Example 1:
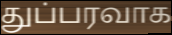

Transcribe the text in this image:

துப்பரவாக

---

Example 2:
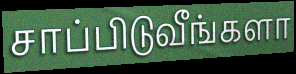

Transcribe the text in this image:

சாப்பிடுவீங்களா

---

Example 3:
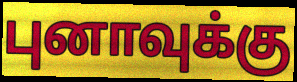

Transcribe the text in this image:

புனாவுக்கு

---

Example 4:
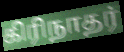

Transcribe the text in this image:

கிரிநாதர்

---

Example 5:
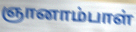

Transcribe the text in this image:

ஞானாம்பாள்